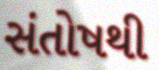
સંતોષથી